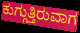
ಕುಗ್ಗುತ್ತಿರುವಾಗ